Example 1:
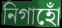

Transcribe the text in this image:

নিগাহোঁ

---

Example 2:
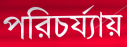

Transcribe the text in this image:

পরিচর্য্যায়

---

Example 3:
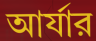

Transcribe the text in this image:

আর্যার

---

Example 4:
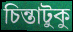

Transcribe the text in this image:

চিন্তাটুকু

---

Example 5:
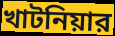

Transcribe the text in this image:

খাটনিয়ার